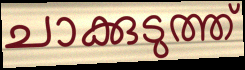
ചാക്കുടുത്ത്